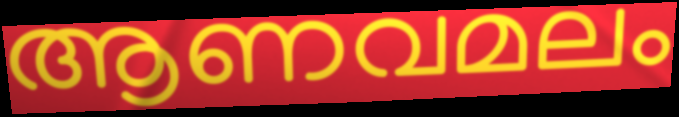
ആണവമലം